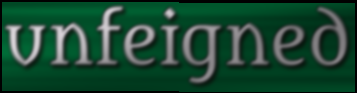
unfeigned